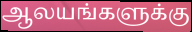
ஆலயங்களுக்கு